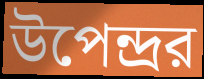
উপেন্দ্রর